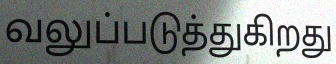
வலுப்படுத்துகிறது